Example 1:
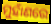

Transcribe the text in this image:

ମୁହାଁଣରେ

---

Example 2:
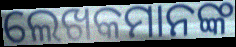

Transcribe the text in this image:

ଲେଖକମାନଙ୍କ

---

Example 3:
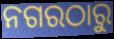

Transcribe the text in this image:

ନଗରଠାରୁ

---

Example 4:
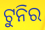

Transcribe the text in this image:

ଟୁନିର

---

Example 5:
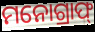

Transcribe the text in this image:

ମନୋଗ୍ରାଫ୍